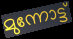
മുന്നോട്ട്